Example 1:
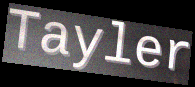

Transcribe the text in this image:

Tayler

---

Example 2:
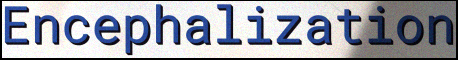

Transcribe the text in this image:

Encephalization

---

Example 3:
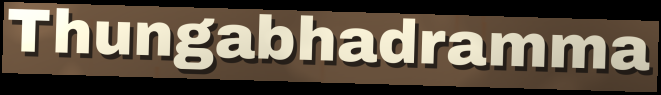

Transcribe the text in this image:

Thungabhadramma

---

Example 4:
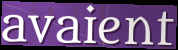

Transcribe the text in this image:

avaient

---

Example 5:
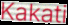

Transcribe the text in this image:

Kakati